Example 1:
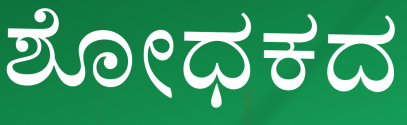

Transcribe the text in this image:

ಶೋಧಕದ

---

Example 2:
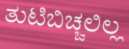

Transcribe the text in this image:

ತುಟಿಬಿಚ್ಚಲಿಲ್ಲ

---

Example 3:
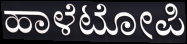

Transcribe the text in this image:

ಹಾಳೆಟೋಪಿ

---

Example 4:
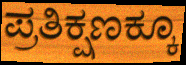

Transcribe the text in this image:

ಪ್ರತಿಕ್ಷಣಕ್ಕೂ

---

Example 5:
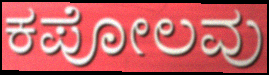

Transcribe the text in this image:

ಕಪೋಲವು